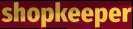
shopkeeper